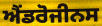
ਐਂਡਰੋਜੀਨਸ